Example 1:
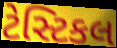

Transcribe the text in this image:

ટેસ્ટિકલ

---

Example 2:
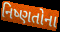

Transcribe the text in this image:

નિષ્ણતોના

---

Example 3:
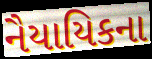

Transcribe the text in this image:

નૈયાયિકના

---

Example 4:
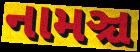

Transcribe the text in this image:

નામઞ્ચ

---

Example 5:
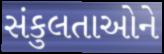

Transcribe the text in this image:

સંકુલતાઓને